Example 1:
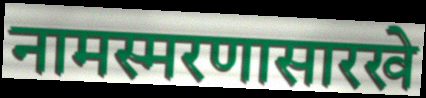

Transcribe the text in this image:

नामस्मरणासारखे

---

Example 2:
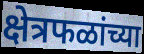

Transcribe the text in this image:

क्षेत्रफळांच्या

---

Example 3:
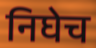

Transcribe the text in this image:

निघेच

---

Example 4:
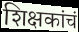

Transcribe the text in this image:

शिक्षकांचं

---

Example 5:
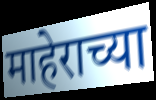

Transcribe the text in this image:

माहेराच्या